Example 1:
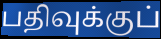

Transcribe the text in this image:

பதிவுக்குப்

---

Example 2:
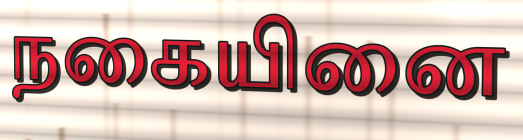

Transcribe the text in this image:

நகையினை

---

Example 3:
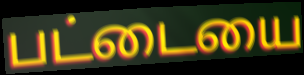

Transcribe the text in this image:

பட்டையை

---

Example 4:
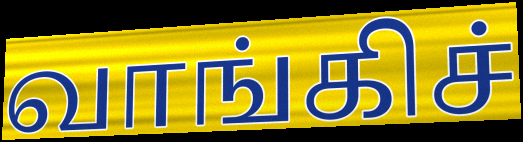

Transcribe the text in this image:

வாங்கிச்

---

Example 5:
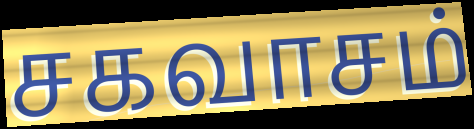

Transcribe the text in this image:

சகவாசம்